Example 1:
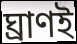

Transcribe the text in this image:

ঘ্রাণই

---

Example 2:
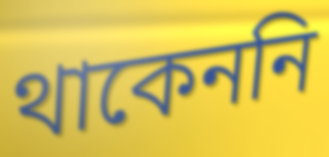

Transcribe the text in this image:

থাকেননি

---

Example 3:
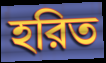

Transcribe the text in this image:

হরিত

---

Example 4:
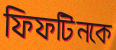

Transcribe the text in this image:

ফিফটিনকে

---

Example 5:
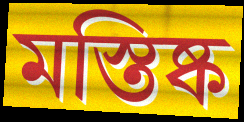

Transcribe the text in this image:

মস্তিষ্ক